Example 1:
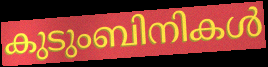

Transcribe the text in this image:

കുടുംബിനികൾ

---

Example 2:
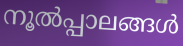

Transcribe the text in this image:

നൂൽപ്പാലങ്ങൾ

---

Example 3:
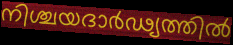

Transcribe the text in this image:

നിശ്ചയദാർഢ്യത്തിൽ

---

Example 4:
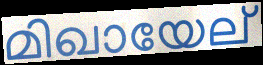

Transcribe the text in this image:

മിഖായേല്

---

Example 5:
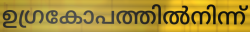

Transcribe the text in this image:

ഉഗ്രകോപത്തിൽനിന്ന്